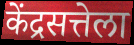
केंद्रसत्तेला